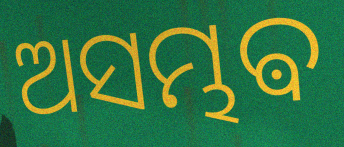
ଅସମ୍ଭଵ